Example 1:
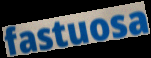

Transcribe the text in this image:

fastuosa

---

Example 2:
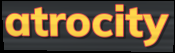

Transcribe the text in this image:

atrocity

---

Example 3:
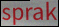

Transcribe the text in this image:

sprak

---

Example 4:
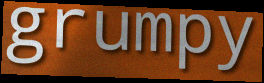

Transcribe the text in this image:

grumpy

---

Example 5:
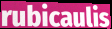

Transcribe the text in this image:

rubicaulis